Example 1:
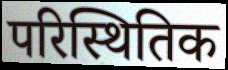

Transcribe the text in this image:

परिस्थितिक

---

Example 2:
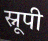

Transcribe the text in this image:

स्नूपी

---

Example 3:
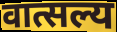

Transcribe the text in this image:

वात्सल्य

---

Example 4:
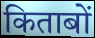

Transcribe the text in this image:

किताबों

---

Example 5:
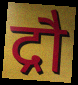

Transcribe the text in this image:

द्रौ